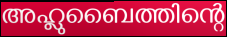
അഹ്ലുബൈത്തിന്റെ